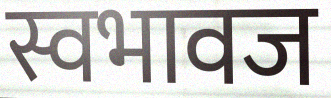
स्वभावज